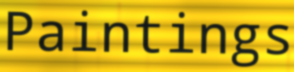
Paintings